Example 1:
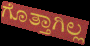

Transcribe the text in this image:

ಗೊತ್ತಾಗಿಲ್ಲ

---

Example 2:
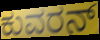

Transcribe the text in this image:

ಕುವರನ್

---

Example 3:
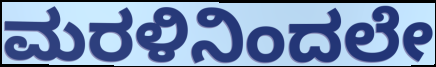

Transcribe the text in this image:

ಮರಳಿನಿಂದಲೇ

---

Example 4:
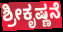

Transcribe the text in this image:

ಶ್ರೀಕೃಷ್ಣನೆ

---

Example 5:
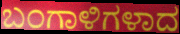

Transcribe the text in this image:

ಬಂಗಾಳಿಗಳಾದ